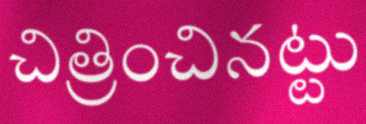
చిత్రించినట్టు